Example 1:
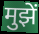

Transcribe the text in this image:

मुझें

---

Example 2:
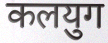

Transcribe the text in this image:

कलयुग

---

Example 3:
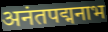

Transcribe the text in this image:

अनंतपद्मनाभ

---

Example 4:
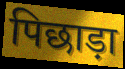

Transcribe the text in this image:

पिछाड़ा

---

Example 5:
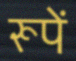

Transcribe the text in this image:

रूपें